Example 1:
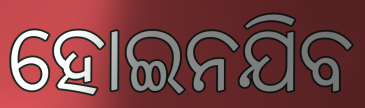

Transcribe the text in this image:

ହୋଇନଯିବ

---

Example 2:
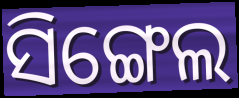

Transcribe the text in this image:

ସିଙ୍ଗେଲ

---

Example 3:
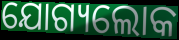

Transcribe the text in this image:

ଯୋଗ୍ୟଲୋକ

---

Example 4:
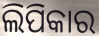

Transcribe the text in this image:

ଲିପିକାର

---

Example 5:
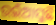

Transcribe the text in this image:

ଉଇଁଆସୁଛି